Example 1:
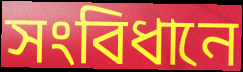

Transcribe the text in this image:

সংবিধানে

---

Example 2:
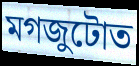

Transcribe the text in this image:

মগজুটোত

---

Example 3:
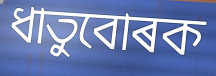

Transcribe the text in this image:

ধাতুবোৰক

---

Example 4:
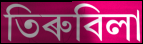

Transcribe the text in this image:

তিৰুবিলা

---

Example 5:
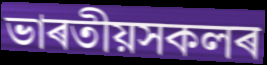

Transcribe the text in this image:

ভাৰতীয়সকলৰ